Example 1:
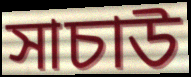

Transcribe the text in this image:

সাচাউ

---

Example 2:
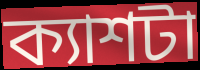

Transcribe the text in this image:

ক্যাশটা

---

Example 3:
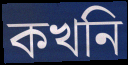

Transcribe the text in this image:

কখনি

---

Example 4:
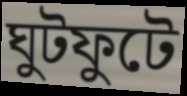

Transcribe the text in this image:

ঘুটফুটে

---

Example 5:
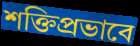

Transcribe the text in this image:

শক্তিপ্রভাবে